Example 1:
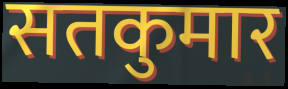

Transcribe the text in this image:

सतकुमार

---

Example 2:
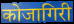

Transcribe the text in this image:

कोजागिरी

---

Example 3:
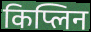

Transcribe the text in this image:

किप्लिन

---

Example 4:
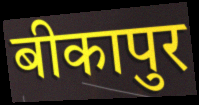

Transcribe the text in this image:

बीकापुर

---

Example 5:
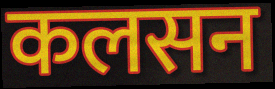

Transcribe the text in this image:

कलसन